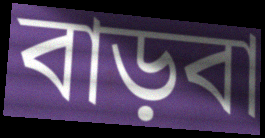
বাড়বা